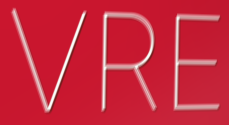
VRE